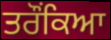
ਤਰੌਂਕਿਆ